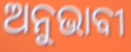
ଅନୁଭାବୀ